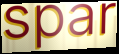
spar